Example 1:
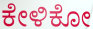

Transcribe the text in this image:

ಕೇಳಿಕೋ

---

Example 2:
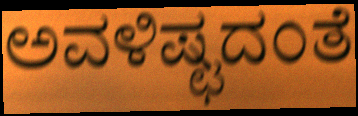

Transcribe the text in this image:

ಅವಳಿಷ್ಟದಂತೆ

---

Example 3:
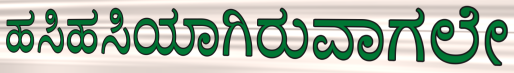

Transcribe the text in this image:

ಹಸಿಹಸಿಯಾಗಿರುವಾಗಲೇ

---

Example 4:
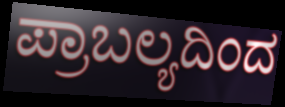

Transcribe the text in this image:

ಪ್ರಾಬಲ್ಯದಿಂದ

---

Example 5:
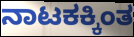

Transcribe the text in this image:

ನಾಟಕಕ್ಕಿಂತ